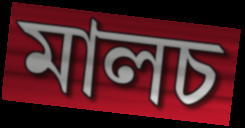
মালচ